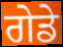
ਗੇਡੇ